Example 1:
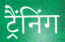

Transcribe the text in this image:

ट्रैंनिंग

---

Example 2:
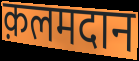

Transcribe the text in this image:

क़लमदान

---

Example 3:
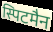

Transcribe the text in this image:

स्पिटमैन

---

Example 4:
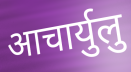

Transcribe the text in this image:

आचार्युलु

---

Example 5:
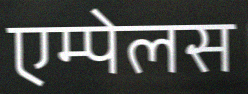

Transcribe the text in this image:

एम्पेलस